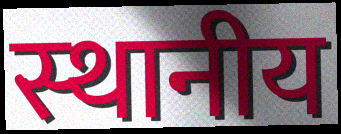
स्‍थानीय